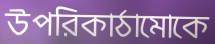
উপরিকাঠামোকে